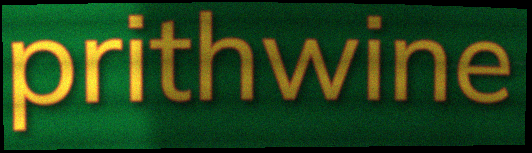
prithwine